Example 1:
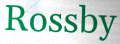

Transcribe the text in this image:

Rossby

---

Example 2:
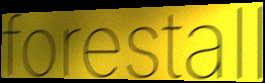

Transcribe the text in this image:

forestall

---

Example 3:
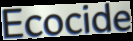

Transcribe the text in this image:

Ecocide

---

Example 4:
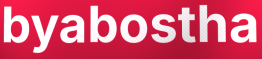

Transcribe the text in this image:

byabostha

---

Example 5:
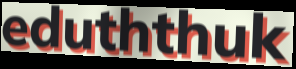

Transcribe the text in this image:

eduththuk